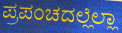
ಪ್ರಪಂಚದಲ್ಲೆಲ್ಲಾ